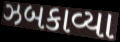
ઝબકાવ્યા